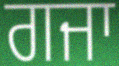
ਗਜਾ